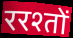
ररश्तों